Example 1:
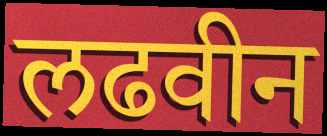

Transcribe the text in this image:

लढवीन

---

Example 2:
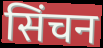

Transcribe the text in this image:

सिंचन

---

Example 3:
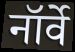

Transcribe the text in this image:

नॉर्वे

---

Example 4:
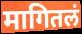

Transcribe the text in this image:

मागितलं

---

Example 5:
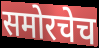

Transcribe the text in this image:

समोरचेच